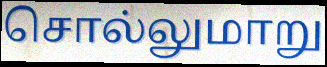
சொல்லுமாறு